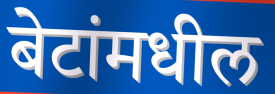
बेटांमधील